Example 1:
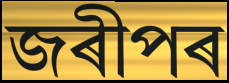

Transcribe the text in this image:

জৰীপৰ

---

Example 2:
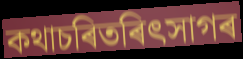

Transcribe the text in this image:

কথাচৰিতৰিৎসাগৰ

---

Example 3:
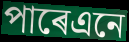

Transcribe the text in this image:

পাৰেএনে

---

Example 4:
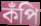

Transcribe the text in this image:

কঁপি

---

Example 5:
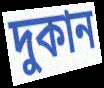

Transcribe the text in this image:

দুকান